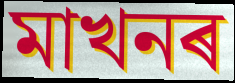
মাখনৰ